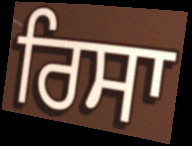
ਰਿਸਾ